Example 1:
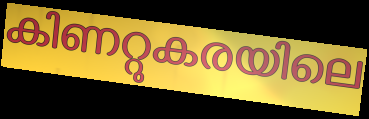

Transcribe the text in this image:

കിണറ്റുകരയിലെ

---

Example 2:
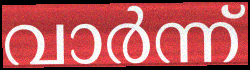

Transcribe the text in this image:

വാർന്ന്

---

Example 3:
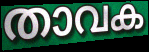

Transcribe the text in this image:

താവക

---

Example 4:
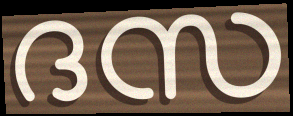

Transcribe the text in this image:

ദസ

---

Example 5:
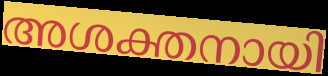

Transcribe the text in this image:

അശക്തനായി